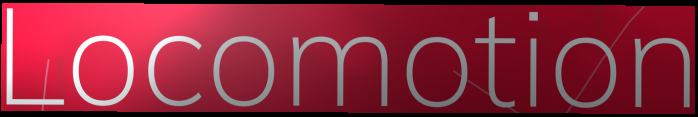
Locomotion